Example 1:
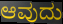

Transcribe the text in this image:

ಆವುದು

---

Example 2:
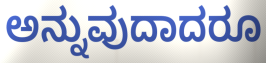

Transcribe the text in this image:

ಅನ್ನುವುದಾದರೂ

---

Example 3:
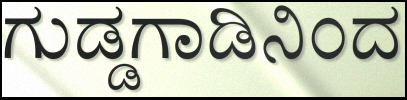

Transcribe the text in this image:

ಗುಡ್ಡಗಾಡಿನಿಂದ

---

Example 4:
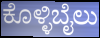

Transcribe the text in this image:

ಕೊಳ್ಳಿಬೈಲು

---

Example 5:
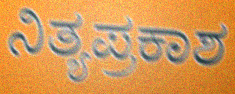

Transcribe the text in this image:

ನಿತ್ಯಪ್ರಕಾಶ